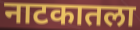
नाटकातला